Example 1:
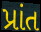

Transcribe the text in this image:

પ્રાંત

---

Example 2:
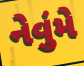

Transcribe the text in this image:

નેવુંમે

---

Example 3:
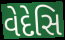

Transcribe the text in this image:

વેદેસિ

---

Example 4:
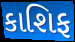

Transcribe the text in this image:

કાશિફ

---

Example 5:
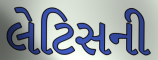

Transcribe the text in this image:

લેટિસની